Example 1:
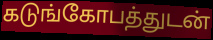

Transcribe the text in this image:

கடுங்கோபத்துடன்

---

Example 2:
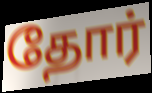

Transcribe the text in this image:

தோர்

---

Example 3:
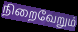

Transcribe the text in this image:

நிறைவேறும்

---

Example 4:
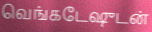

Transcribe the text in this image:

வெங்கடேஷுடன்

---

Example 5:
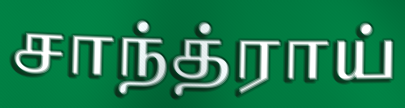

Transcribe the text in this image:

சாந்த்ராய்